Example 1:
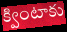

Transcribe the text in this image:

క్వింటాకు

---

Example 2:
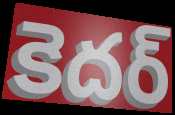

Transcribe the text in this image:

కెదర్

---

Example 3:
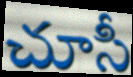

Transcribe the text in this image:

చూసీ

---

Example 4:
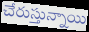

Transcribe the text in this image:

చేరుస్తున్నాయి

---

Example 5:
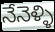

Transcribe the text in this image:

నేనెళ్ళి